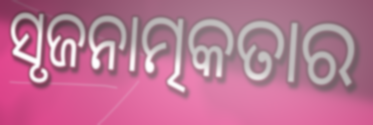
ସୃଜନାତ୍ମକତାର